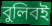
বুলিবই